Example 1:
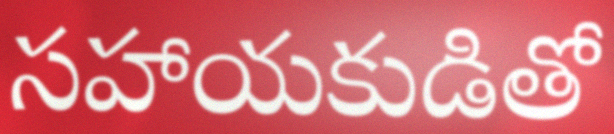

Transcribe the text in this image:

సహాయకుడితో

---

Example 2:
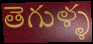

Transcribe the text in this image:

తెగుళ్ళ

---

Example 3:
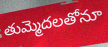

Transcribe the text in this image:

తుమ్మెదలతోనూ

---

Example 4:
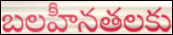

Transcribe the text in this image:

బలహీనతలకు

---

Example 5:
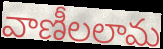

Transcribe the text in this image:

వాణీలలామ